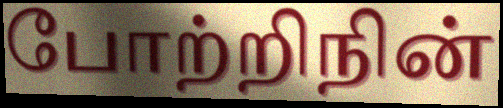
போற்றிநின்